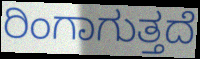
ರಿಂಗಾಗುತ್ತದೆ